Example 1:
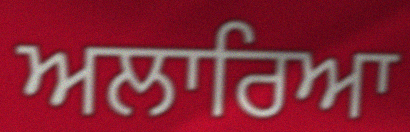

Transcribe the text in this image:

ਅਲਾਰਿਆ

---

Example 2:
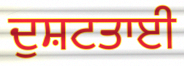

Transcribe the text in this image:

ਦੁਸ਼ਟਤਾਈ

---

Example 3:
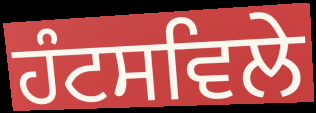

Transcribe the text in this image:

ਹੰਟਸਵਿਲੇ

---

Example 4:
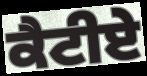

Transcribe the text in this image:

ਕੈਟੀਏ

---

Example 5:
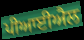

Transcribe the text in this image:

ਪੀਆਈਐਲ